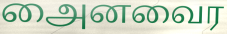
அைனவைர